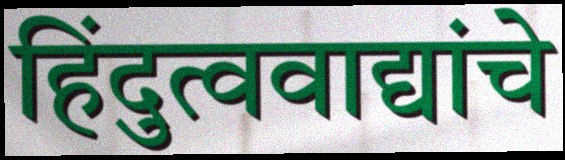
हिंदुत्ववाद्यांचे